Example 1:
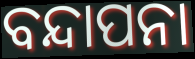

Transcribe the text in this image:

ବନ୍ଦାପନା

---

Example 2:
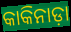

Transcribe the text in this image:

କାକିନାଡ଼ା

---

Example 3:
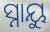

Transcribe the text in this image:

ସ୍ନାୟୁ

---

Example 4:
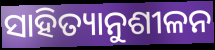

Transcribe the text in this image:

ସାହିତ୍ୟାନୁଶୀଳନ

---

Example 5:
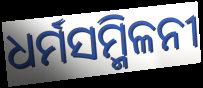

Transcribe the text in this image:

ଧର୍ମସମ୍ମିଳନୀ